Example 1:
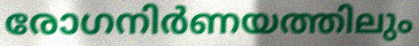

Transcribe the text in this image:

രോഗനിർണയത്തിലും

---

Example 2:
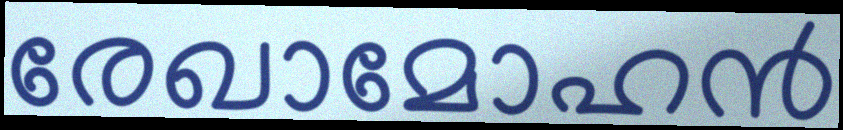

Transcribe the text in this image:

രേഖാമോഹൻ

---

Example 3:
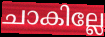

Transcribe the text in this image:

ചാകില്ലേ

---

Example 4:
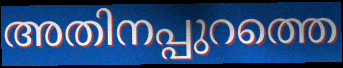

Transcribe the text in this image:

അതിനപ്പുറത്തെ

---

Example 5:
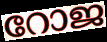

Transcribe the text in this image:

റോജ